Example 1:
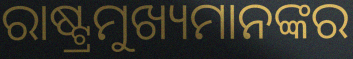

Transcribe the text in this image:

ରାଷ୍ଟ୍ରମୁଖ୍ୟମାନଙ୍କର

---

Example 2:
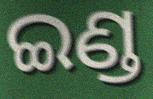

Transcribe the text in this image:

ଇଣ୍ଡ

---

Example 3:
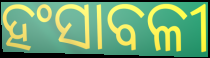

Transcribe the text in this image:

ହଂସାବଳୀ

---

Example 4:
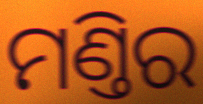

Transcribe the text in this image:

ମଣ୍ତିର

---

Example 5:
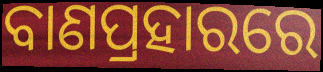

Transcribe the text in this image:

ବାଣପ୍ରହାରରେ